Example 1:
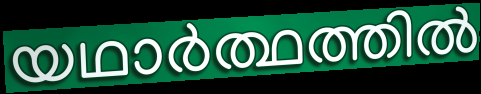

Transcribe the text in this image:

യഥാർത്ഥത്തിൽ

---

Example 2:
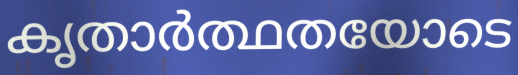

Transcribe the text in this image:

കൃതാർത്ഥതയോടെ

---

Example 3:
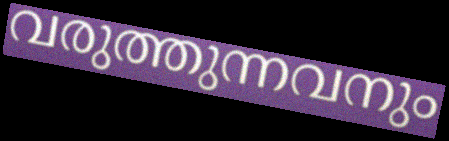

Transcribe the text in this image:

വരുത്തുന്നവനും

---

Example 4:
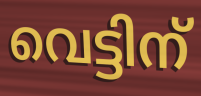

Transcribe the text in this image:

വെട്ടിന്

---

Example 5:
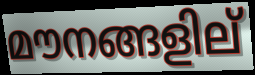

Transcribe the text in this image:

മൗനങ്ങളില്